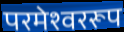
परमेश्वररूप